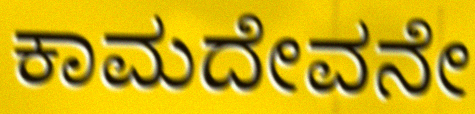
ಕಾಮದೇವನೇ